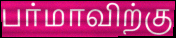
பர்மாவிற்கு